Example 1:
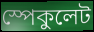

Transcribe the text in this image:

স্পেকুলেট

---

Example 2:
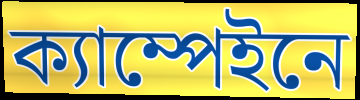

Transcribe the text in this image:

ক্যাম্পেইনে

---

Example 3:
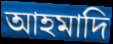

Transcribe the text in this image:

আহমাদি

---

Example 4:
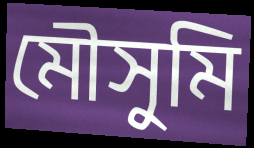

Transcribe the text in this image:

মৌসুমি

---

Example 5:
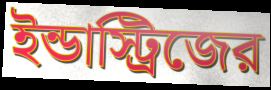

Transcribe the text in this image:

ইন্ডাস্ট্রিজের